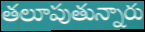
తలూపుతున్నారు